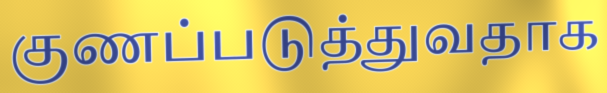
குணப்படுத்துவதாக